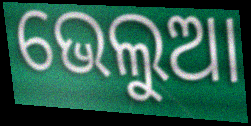
ଭେଲୁଆ